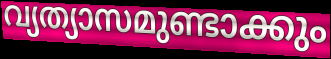
വ്യത്യാസമുണ്ടാക്കും